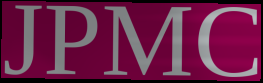
JPMC